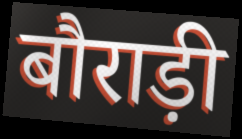
बौराड़ी